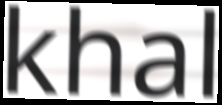
khal